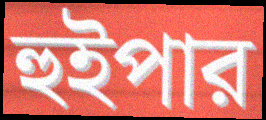
হুইপার